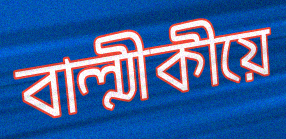
বাল্মীকীয়ে